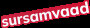
sursamvaad